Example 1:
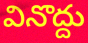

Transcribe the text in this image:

వినొద్దు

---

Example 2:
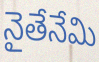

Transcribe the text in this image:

నైతేనేమి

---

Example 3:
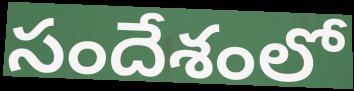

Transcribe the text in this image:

సందేశంలో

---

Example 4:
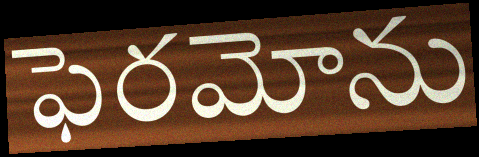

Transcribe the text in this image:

ఫెరమోను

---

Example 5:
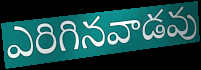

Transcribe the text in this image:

ఎరిగినవాడవు